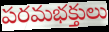
పరమభక్తులు